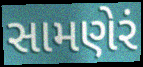
સામણેરં